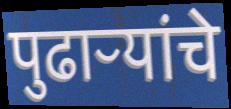
पुढाऱ्यांचे